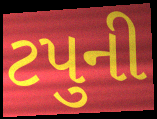
ટપુની